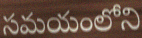
సమయంలోని